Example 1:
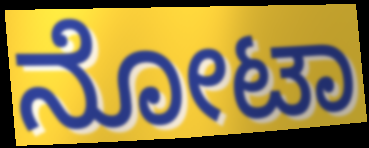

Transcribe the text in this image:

ನೋಟಾ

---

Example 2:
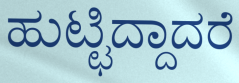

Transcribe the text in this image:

ಹುಟ್ಟಿದ್ದಾದರೆ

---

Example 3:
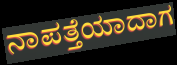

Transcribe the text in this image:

ನಾಪತ್ತೆಯಾದಾಗ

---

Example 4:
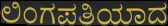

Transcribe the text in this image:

ಲಿಂಗಪತಿಯಾದ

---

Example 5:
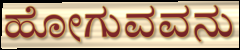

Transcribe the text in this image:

ಹೋಗುವವನು